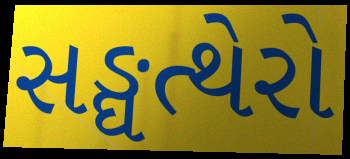
સઙ્ઘત્થેરો